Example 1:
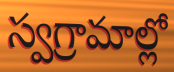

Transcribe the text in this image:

స్వగ్రామాల్లో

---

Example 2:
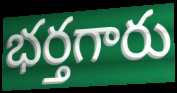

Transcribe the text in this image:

భర్తగారు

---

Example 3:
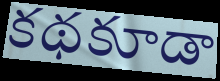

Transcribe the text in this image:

కథకూడా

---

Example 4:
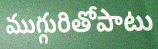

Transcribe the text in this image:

ముగ్గురితోపాటు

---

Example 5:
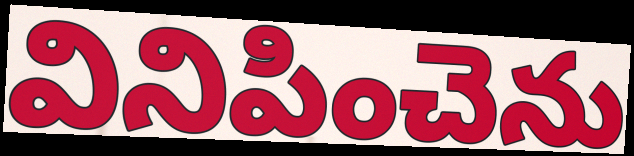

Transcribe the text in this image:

వినిపించెను